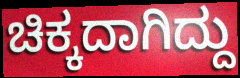
ಚಿಕ್ಕದಾಗಿದ್ದು